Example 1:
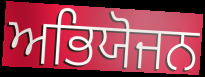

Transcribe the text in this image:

ਅਭਿਯੋਜਨ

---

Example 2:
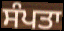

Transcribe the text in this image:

ਸੰਪਤਾ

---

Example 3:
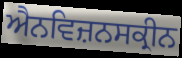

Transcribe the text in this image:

ਐਨਵਿਜ਼ਨਸਕ੍ਰੀਨ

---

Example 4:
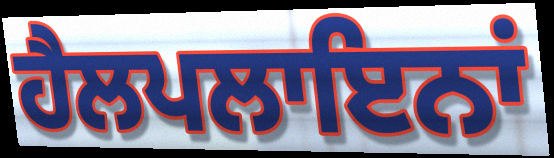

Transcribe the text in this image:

ਹੈਲਪਲਾਇਨਾਂ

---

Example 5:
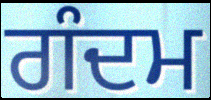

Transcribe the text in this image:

ਗੰਦਮ